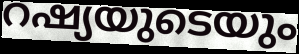
റഷ്യയുടെയും